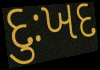
દુઃખદ